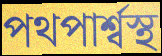
পথপার্শ্বস্থ